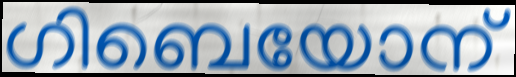
ഗിബെയോന്